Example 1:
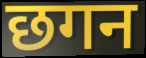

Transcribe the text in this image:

छगन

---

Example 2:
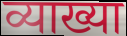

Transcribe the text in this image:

व्याख्या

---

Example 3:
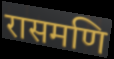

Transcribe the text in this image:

रासमणि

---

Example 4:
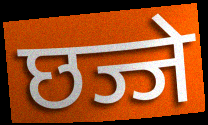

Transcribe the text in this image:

छज्जे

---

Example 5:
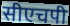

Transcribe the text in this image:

सीएचपी